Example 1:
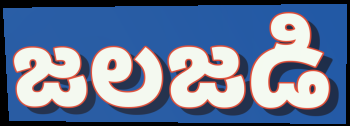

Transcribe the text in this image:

జలజడి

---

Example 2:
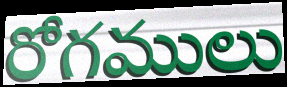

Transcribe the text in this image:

రోగములు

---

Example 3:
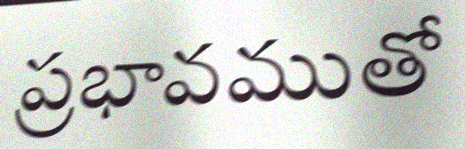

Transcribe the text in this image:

ప్రభావముతో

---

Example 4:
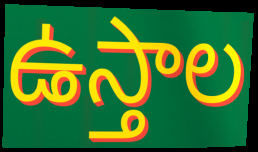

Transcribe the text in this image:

ఉస్తాల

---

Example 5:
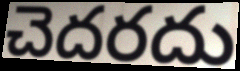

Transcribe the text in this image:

చెదరదు